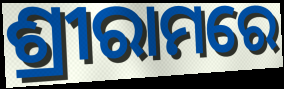
ଶ୍ରୀରାମରେ